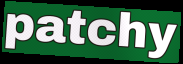
patchy